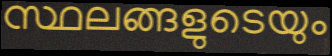
സ്ഥലങ്ങളുടെയും